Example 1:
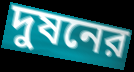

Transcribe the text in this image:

দুষনের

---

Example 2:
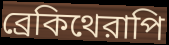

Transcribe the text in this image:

ব্রেকিথেরাপি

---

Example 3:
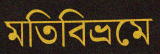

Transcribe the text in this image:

মতিবিভ্রমে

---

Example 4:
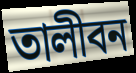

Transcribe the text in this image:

তালীবন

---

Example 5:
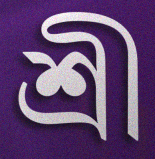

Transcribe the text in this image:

শ্রী